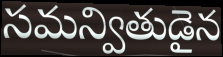
సమన్వితుడైన